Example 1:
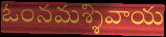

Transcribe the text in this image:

ఓంనమశ్శివాయ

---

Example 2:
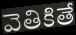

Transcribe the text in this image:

వెతికితే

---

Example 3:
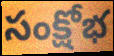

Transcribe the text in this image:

సంక్షోభ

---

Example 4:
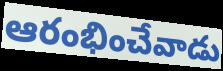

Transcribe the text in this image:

ఆరంభించేవాడు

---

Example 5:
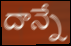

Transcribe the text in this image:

దాన్నే